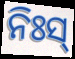
ନିଃସ୍